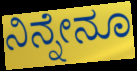
ನಿನ್ನೇನೂ